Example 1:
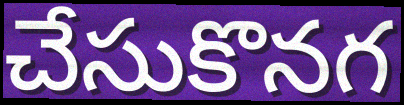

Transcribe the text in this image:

చేసుకొనగ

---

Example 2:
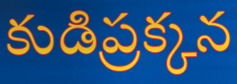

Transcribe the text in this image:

కుడిప్రక్కన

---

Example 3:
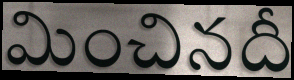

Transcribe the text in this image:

మించినదీ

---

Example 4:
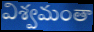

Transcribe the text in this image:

విశ్వమంతా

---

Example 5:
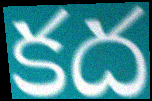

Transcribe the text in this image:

కద